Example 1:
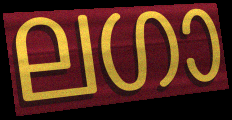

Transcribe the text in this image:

ലഗാ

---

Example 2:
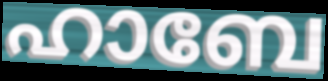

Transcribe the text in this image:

ഹാബേ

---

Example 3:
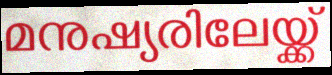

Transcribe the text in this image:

മനുഷ്യരിലേയ്ക്ക്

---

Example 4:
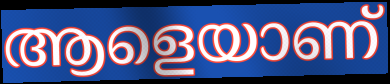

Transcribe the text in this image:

ആളെയാണ്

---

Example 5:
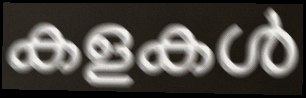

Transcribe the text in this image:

കളകൾ